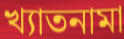
খ্যাতনামা